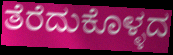
ತೆರೆದುಕೊಳ್ಳದ